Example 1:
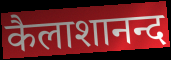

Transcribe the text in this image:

कैलाशानन्द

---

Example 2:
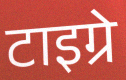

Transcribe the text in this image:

टाइग्रे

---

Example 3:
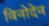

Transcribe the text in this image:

विनोदेन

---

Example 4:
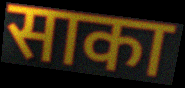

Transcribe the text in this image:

साका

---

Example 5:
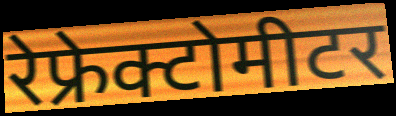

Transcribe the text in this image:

रेफ्रेक्टोमीटर